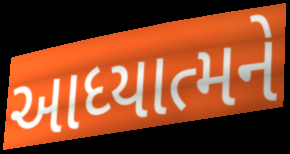
આધ્યાત્મને